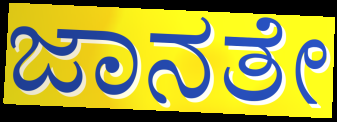
ಜಾನತೇ